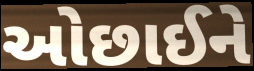
ઓછાઈને